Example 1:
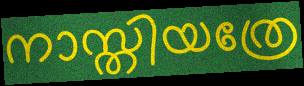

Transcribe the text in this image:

നാസ്തിയത്രേ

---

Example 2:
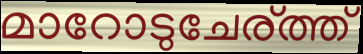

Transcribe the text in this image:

മാറോടുചേര്ത്ത്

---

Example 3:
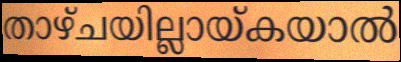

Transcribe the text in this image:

താഴ്ചയില്ലായ്കയാൽ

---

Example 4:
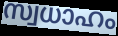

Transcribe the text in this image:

സ്വധാഹം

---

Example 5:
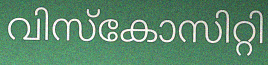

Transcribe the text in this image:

വിസ്കോസിറ്റി